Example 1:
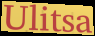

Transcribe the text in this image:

Ulitsa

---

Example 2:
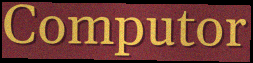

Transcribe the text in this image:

Computor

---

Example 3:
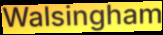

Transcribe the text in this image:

Walsingham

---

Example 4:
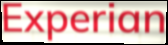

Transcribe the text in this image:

Experian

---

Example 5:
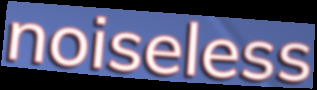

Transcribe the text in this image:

noiseless